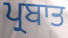
ਪ੍ਰਬਾਤ